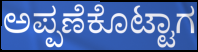
ಅಪ್ಪಣೆಕೊಟ್ಟಾಗ